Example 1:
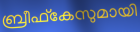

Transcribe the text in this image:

ബ്രീഫ്കേസുമായി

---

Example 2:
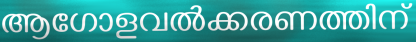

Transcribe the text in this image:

ആഗോളവൽക്കരണത്തിന്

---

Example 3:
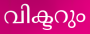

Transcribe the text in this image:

വിക്ടറും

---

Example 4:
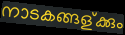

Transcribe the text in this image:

നാടകങ്ങള്ക്കും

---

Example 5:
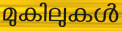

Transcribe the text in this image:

മുകിലുകൾ